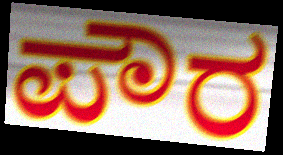
ಪೌರ